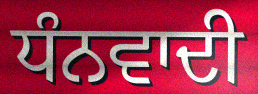
ਧੰਨਵਾਦੀ